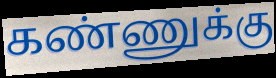
கண்ணுக்கு